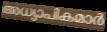
അധ്യാപികമാർ